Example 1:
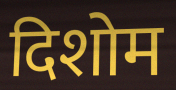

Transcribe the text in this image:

दिशोम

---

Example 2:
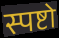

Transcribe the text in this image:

स्पष्टो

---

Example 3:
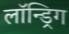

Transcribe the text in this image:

लॉन्ड्रिग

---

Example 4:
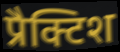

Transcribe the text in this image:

प्रैक्टिश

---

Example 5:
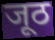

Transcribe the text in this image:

जूठ